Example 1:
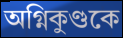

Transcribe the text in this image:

অগ্নিকুণ্ডকে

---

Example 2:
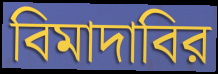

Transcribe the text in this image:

বিমাদাবির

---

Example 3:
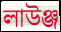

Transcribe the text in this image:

লাউঞ্জ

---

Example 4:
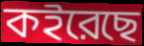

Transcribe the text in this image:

কইরেছে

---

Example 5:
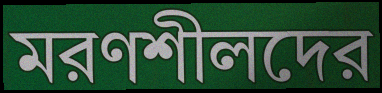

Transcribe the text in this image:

মরণশীলদের